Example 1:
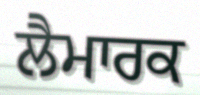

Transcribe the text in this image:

ਲੈਮਾਰਕ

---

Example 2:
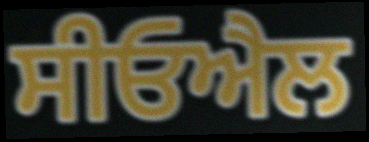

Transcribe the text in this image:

ਸੀਓਐਲ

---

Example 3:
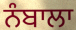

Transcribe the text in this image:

ਨੰਬਾਲਾ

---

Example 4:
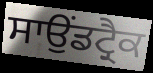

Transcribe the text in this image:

ਸਾਉਂਡਟ੍ਰੈਕ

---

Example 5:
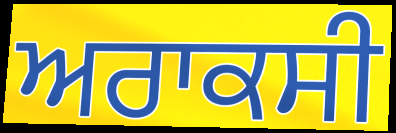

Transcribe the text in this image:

ਅਰਾਕਸੀ